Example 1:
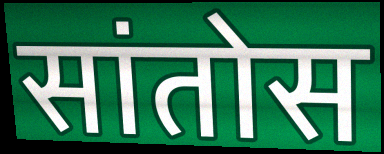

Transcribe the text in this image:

सांतोस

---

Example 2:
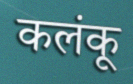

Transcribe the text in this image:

कलंकू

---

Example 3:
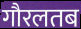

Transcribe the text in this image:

गौरलतब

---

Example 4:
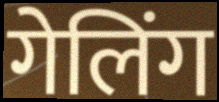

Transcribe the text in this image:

गेलिंग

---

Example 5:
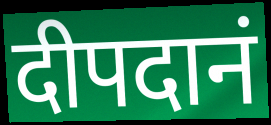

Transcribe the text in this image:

दीपदानं